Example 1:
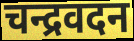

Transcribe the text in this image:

चन्द्रवदन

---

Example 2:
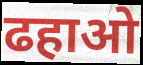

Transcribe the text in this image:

ढहाओ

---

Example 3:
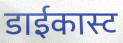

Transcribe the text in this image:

डाईकास्ट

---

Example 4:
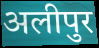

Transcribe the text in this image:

अलीपुर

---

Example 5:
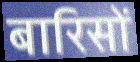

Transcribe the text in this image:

बारिसों